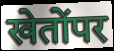
खेतोंपर